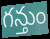
గన్తుం